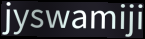
jyswamiji